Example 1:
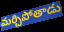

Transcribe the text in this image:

మర్చిపోతాడు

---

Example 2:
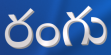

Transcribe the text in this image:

రంగు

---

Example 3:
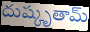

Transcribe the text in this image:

దుష్కృతామ్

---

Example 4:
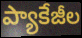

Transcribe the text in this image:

ప్యాకేజీల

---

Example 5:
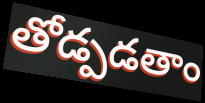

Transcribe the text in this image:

తోడ్పడతాం